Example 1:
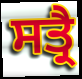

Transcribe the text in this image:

ਸਤ੍ਰੈ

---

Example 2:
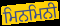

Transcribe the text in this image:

ਮਿਨਮਿਨੀ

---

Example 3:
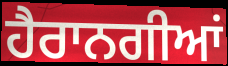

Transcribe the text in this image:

ਹੈਰਾਨਗੀਆਂ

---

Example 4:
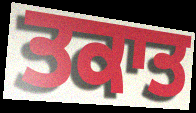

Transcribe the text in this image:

ਤਕਾਤ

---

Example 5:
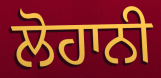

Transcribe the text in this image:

ਲੋਹਾਨੀ